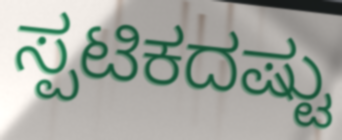
ಸ್ಪಟಿಕದಷ್ಟು